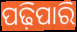
ପଢ଼ିପାରି